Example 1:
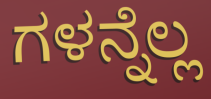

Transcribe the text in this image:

ಗಳನ್ನೆಲ್ಲ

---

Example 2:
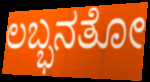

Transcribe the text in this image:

ಲಬ್ಭನತೋ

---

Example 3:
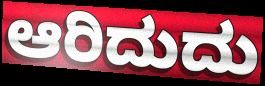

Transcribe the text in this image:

ಆರಿದುದು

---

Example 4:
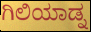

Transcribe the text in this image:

ಗಿಲಿಯಾಡ್ನ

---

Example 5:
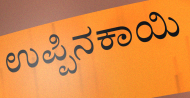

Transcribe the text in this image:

ಉಪ್ಪಿನಕಾಯಿ